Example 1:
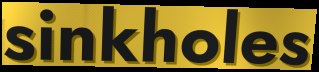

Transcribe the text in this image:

sinkholes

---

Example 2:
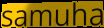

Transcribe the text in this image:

samuha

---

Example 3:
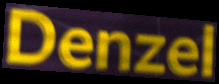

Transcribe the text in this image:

Denzel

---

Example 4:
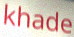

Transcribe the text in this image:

khade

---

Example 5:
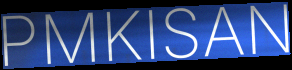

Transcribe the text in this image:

PMKISAN